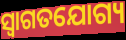
ସ୍ବାଗତଯୋଗ୍ୟ